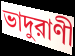
ভাদুরাণী